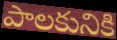
పాలకునికి